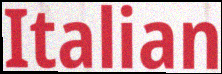
Italian